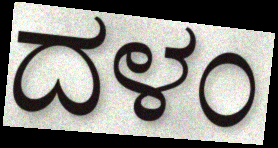
ದಳಂ